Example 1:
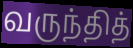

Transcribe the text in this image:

வருந்தித்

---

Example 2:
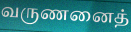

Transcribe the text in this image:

வருணனைத்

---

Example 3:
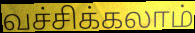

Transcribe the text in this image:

வச்சிக்கலாம்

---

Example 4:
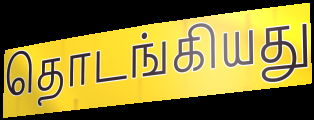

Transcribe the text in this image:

தொடங்கியது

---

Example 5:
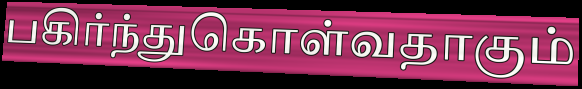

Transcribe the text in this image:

பகிர்ந்துகொள்வதாகும்